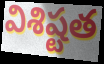
విశిష్టత